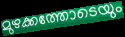
മുഴക്കത്തോടെയും